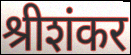
श्रीशंकर